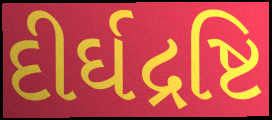
દીર્ઘદ્રષ્ટિ